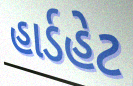
હાર્ડહેટ